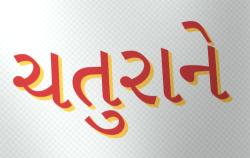
ચતુરાને